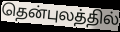
தென்புலத்தில்